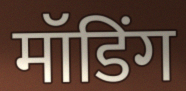
मॉडिंग